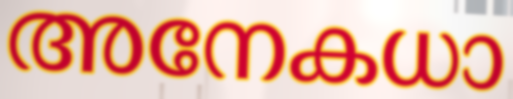
അനേകധാ